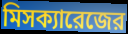
মিসক্যারেজের